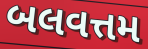
બલવત્તમ